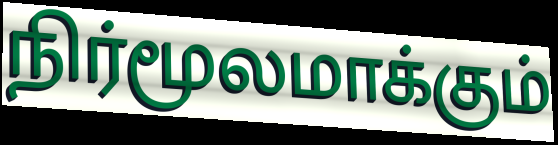
நிர்மூலமாக்கும்